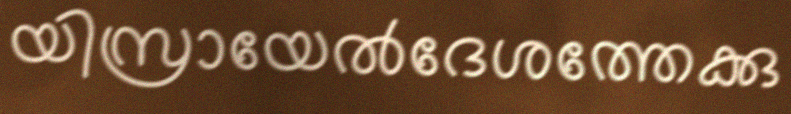
യിസ്രായേൽദേശത്തേക്കു